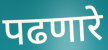
पढणारे